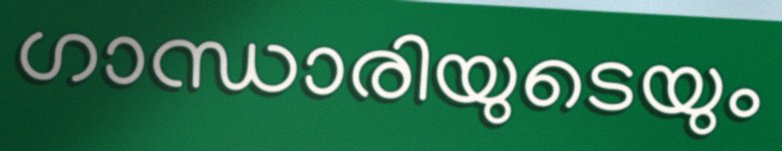
ഗാന്ധാരിയുടെയും